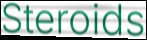
Steroids